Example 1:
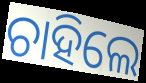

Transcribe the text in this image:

ଚାହିଲେ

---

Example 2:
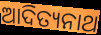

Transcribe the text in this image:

ଆଦିତ୍ୟନାଥ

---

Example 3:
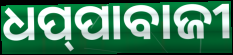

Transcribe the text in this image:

ଧପ୍‌ପାବାଜୀ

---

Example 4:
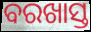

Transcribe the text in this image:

ବରଖାସ୍ତ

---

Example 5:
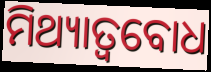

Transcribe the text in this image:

ମିଥ୍ୟାତ୍ୱବୋଧ